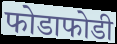
फोडाफोडी